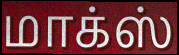
மாக்ஸ்